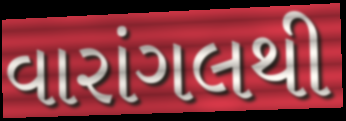
વારાંગલથી